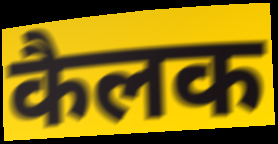
कैलक